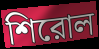
শিরোল